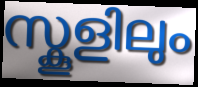
സ്കൂളിലും